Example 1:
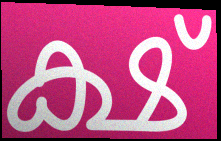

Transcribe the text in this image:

ക്ഷ്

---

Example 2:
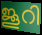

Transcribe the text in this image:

ജൂറി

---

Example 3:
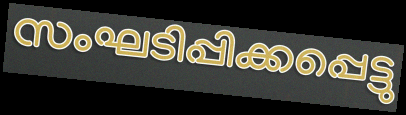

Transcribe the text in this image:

സംഘടിപ്പിക്കപ്പെട്ടു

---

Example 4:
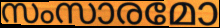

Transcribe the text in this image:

സംസാരമോ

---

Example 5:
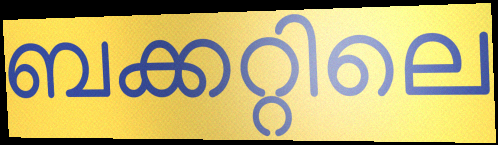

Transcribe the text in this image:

ബക്കറ്റിലെ